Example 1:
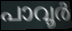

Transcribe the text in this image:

പാവൂർ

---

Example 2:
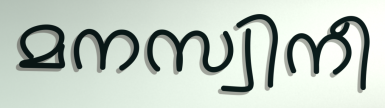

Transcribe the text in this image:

മനസ്വിനീ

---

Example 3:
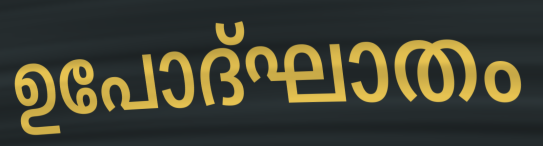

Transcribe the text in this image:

ഉപോദ്ഘാതം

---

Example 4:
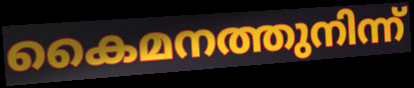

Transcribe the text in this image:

കൈമനത്തുനിന്ന്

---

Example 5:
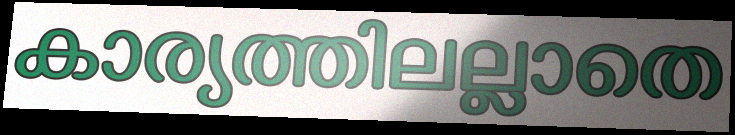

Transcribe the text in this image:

കാര്യത്തിലല്ലാതെ